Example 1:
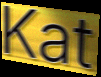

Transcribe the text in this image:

Kat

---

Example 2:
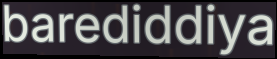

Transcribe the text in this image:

barediddiya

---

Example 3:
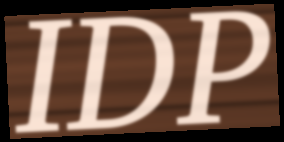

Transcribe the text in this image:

IDP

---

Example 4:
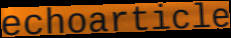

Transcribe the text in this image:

echoarticle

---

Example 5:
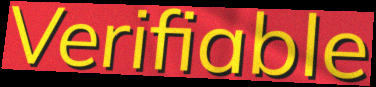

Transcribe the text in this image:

Verifiable